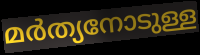
മർത്യനോടുള്ള